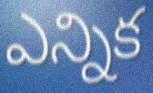
ఎన్నిక